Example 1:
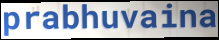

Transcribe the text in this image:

prabhuvaina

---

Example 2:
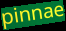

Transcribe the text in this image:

pinnae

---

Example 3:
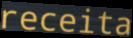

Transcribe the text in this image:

receita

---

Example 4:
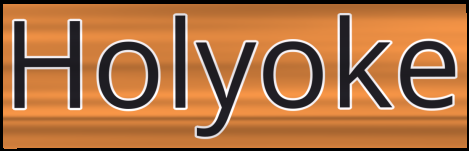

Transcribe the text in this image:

Holyoke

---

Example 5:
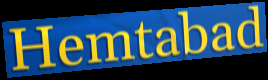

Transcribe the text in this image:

Hemtabad